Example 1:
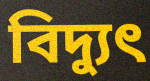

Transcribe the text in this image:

বিদ্যুৎ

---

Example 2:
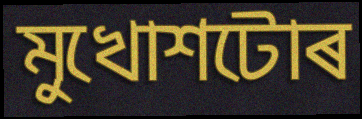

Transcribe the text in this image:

মুখোশটোৰ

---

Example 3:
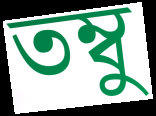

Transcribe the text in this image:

তম্বু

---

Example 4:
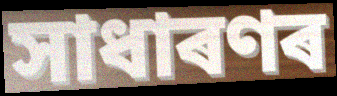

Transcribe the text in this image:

সাধাৰণৰ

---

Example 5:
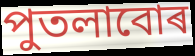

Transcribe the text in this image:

পুতলাবোৰ